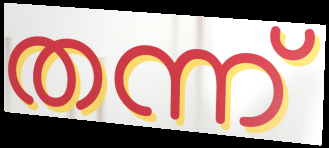
തന്ന്